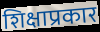
शिक्षाप्रकार